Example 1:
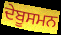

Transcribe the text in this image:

ਦੇਬੂਸਮਨ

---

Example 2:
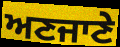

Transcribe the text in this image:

ਅਣਜਾਣੇ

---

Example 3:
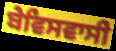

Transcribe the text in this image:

ਬੇਵਿਸਵਾਸੀ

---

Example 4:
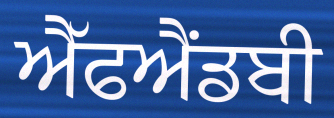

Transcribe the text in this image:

ਐੱਫਐਂਡਬੀ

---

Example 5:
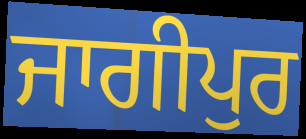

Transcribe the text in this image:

ਜਾਗੀਪੁਰ